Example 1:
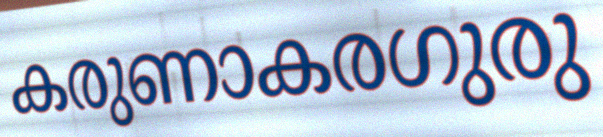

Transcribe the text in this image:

കരുണാകരഗുരു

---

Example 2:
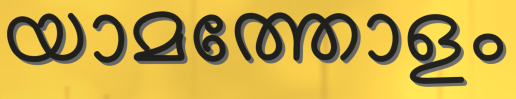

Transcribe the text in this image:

യാമത്തോളം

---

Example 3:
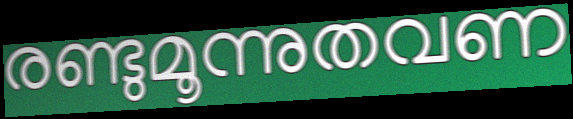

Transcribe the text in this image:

രണ്ടുമൂന്നുതവണ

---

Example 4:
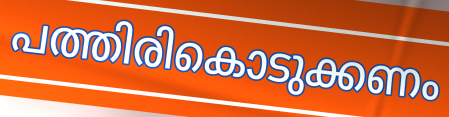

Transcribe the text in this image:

പത്തിരികൊടുക്കണം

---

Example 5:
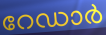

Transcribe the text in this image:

റേഡാർ